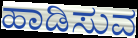
ಹಾಡಿಸುವ